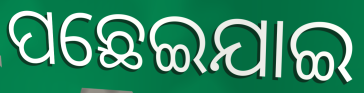
ପଛେଇଯାଇ